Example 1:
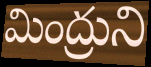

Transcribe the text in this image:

మింద్రుని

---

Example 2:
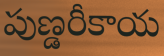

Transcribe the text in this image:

పుణ్డరీకాయ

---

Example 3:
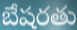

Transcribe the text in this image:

బేషరతు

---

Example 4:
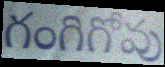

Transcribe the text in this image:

గంగిగోవు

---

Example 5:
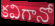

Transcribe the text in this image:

కవిగానో